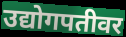
उद्योगपतीवर